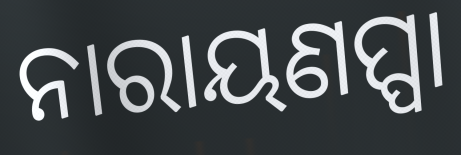
ନାରାୟଣପ୍ପା